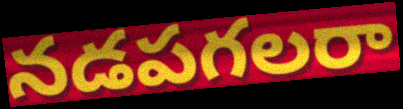
నడపగలరా